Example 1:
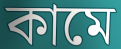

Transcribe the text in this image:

কামে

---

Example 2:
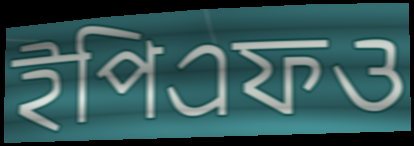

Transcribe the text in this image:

ইপিএফও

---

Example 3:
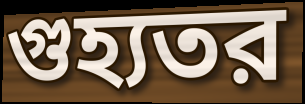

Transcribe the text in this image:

গুহ্যতর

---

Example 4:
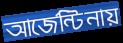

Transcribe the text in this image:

আর্জেন্টিনায়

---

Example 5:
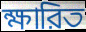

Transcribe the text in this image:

ক্ষারিত